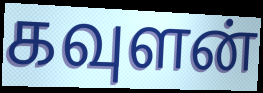
கவுளன்